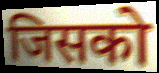
जिसको